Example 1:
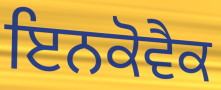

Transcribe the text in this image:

ਇਨਕੋਵੈਕ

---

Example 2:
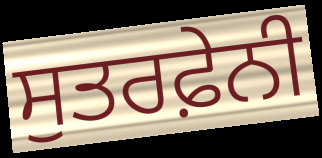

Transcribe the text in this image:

ਸੁਤਰਫ਼ੇਨੀ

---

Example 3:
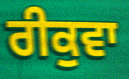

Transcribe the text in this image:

ਰੀਕੁਵਾ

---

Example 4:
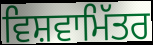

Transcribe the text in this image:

ਵਿਸ਼ਵਾਮਿੱਤਰ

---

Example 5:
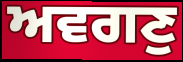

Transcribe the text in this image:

ਅਵਗਣੁ